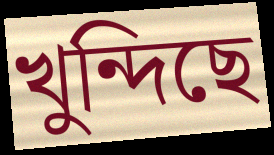
খুন্দিছে